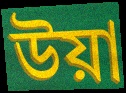
উয়া